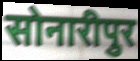
सोनारीपुर